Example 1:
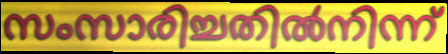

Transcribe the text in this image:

സംസാരിച്ചതിൽനിന്ന്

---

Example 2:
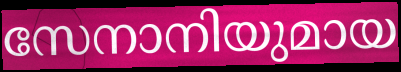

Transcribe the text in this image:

സേനാനിയുമായ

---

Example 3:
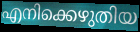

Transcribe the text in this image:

എനിക്കെഴുതിയ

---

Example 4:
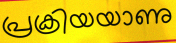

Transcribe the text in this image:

പ്രക്രിയയാണു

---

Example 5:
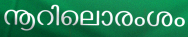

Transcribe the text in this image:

നൂറിലൊരംശം